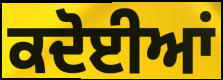
ਕਦੋਈਆਂ